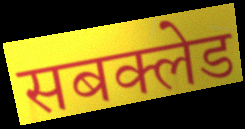
सबक्लेड